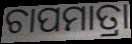
ଚାପମାତ୍ରା